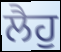
ਲੈਹੁ